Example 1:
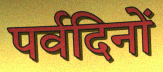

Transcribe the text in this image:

पर्वदिनों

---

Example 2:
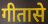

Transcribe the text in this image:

गीतासे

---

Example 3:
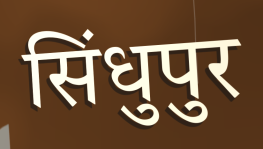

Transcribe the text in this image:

सिंधुपुर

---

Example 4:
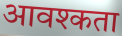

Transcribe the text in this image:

आवश्कता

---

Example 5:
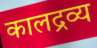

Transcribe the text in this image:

कालद्रव्य